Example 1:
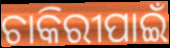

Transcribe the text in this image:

ଚାକିରୀପାଇଁ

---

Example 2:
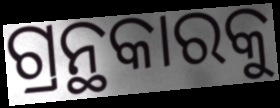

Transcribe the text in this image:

ଗ୍ରନ୍ଥକାରକୁ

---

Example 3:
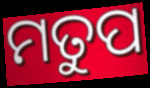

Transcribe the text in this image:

ମତୁପ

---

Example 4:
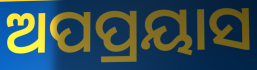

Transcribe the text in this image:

ଅପପ୍ରୟାସ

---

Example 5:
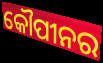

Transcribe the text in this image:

କୌପୀନର